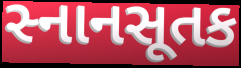
સ્નાનસૂતક